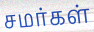
சமர்கள்